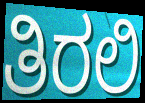
ತಿರಲಿ